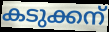
കടുക്കന്